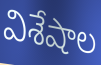
విశేషాల